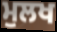
ਮੁਲਖ